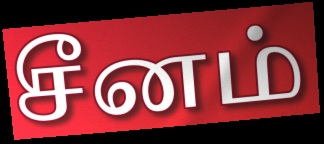
சீனம்